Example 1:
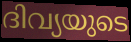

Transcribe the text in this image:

ദിവ്യയുടെ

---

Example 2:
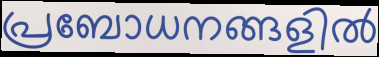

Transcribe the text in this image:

പ്രബോധനങ്ങളിൽ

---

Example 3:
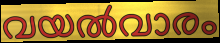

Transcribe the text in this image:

വയൽവാരം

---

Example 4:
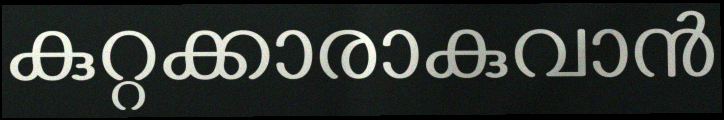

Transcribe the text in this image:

കുറ്റക്കാരാകുവാൻ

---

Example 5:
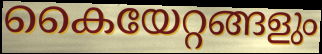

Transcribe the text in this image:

കൈയേറ്റങ്ങളും